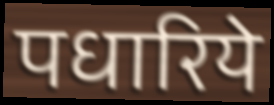
पधारिये